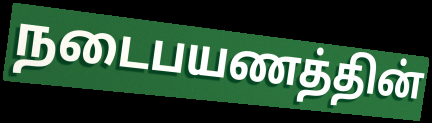
நடைபயணத்தின்